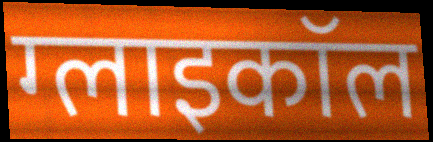
ग्लाइकॉल